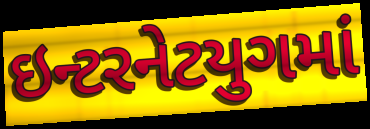
ઇન્ટરનેટયુગમાં